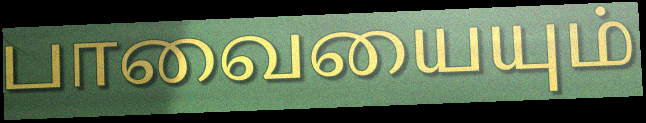
பாவையையும்